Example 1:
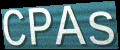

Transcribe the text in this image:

CPAs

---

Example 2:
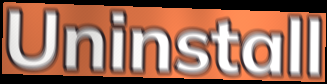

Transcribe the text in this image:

Uninstall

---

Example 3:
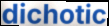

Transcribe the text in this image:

dichotic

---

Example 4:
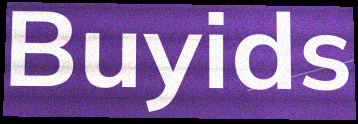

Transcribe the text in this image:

Buyids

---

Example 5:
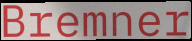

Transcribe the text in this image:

Bremner